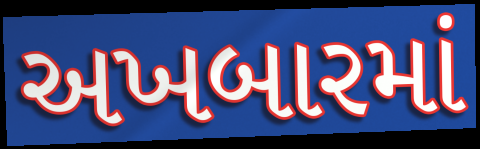
અખબારમાં